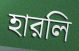
হারলি